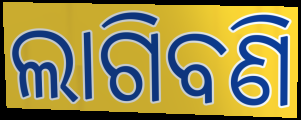
ଲାଗିବଣି